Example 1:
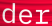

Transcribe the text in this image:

der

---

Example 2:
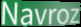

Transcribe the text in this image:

Navroz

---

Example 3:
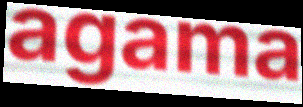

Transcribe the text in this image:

agama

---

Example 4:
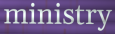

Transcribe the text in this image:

ministry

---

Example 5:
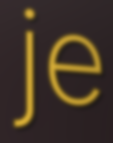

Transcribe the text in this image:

je